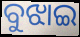
ବୁଝାଇ